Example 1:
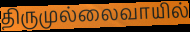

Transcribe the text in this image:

திருமுல்லைவாயில்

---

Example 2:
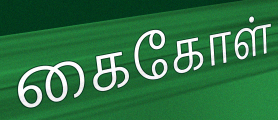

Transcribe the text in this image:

கைகோள்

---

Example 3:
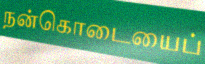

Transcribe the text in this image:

நன்கொடையைப்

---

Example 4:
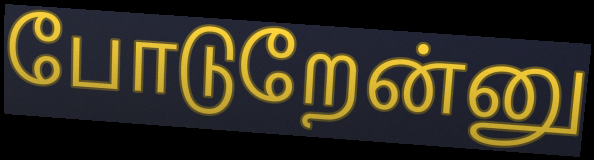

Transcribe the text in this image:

போடுறேன்னு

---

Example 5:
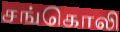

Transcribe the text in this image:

சங்கொலி